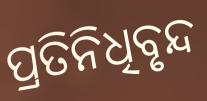
ପ୍ରତିନିଧିବୃନ୍ଦ